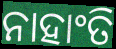
ନାହାଂତି